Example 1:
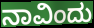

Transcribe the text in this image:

ನಾವಿಂದು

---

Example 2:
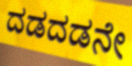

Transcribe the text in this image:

ದಡದಡನೇ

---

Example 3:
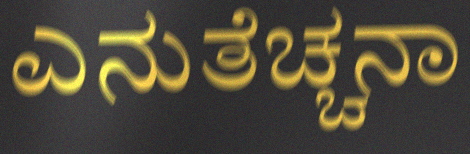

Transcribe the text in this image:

ಎನುತೆಚ್ಚನಾ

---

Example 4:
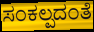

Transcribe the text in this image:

ಸಂಕಲ್ಪದಂತೆ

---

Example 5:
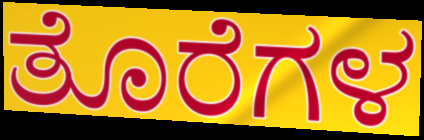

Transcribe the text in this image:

ತೊರೆಗಳ